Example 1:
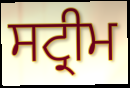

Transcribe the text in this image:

ਸਟ੍ਰੀਮ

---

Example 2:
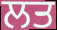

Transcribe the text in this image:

ਲਤ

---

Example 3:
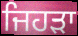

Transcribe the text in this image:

ਜਿਹੜਾ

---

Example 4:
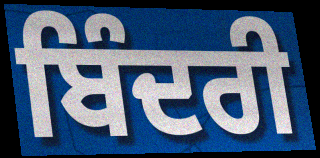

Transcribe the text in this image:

ਬਿੰਦਰੀ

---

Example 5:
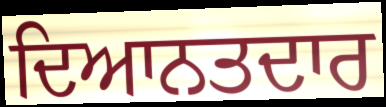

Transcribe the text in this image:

ਦਿਆਨਤਦਾਰ